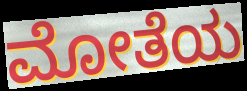
ಮೋತೆಯ